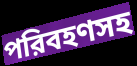
পরিবহণসহ